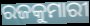
ରଜକୁମାରୀ